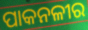
ପାକନଳୀର